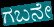
ಗಬನೇ